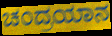
ಚಂದ್ರಯಾನ